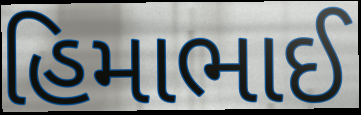
હિમાભાઈ